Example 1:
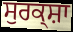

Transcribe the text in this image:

ਸੁਰਕ੍ਸ਼ਾ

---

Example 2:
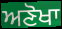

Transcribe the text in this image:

ਅਣੋਖਾ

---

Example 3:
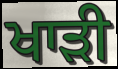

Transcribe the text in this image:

ਖਾਡ਼ੀ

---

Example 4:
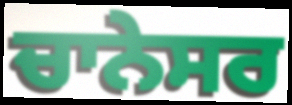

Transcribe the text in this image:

ਚਾਨੇਸਰ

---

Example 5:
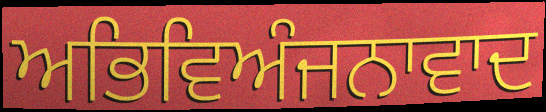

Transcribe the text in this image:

ਅਭਿਵਿਅੰਜਨਾਵਾਦ